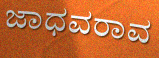
ಜಾಧವರಾವ